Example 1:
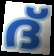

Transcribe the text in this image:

ദ്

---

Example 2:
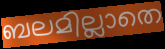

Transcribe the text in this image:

ബലമില്ലാതെ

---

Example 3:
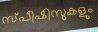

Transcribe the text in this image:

സ്പീഷിസുകളും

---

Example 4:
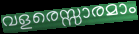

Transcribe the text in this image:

വളരെസ്സാരമാം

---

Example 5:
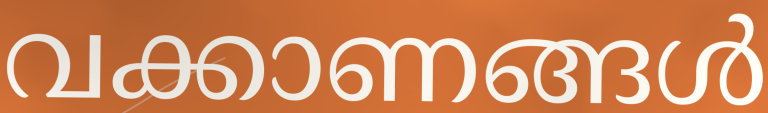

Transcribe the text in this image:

വക്കാണങ്ങൾ